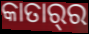
କାତାର୍‌ର